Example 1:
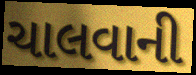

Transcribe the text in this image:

ચાલવાની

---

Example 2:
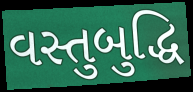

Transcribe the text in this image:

વસ્તુબુદ્ધિ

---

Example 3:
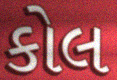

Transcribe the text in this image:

કોલ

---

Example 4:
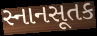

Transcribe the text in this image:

સ્નાનસૂતક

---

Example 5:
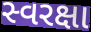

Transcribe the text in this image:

સ્વરક્ષા